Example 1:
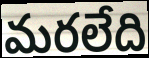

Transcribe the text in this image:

మరలేది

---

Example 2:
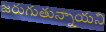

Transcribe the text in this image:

జరుగుతున్నాయని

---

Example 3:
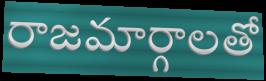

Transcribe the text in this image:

రాజమార్గాలతో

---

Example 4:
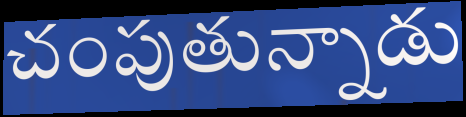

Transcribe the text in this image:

చంపుతున్నాడు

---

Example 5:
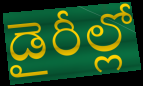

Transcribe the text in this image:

డైరీల్లో